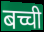
बच्ची